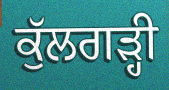
ਕੁੱਲਗੜ੍ਹੀ